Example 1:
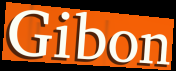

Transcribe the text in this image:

Gibon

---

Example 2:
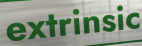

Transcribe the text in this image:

extrinsic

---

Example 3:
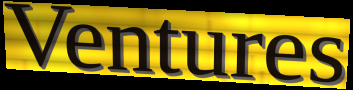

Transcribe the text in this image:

Ventures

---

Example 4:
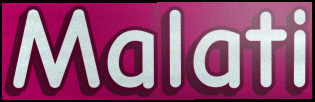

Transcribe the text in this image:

Malati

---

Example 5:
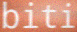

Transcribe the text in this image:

biti